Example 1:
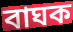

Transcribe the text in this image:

বাঘক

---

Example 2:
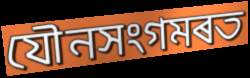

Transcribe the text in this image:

যৌনসংগমৰত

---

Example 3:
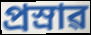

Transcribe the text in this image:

প্ৰস্ৰাৱ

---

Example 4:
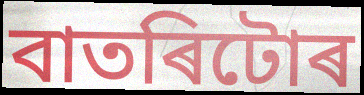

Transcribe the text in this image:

বাতৰিটোৰ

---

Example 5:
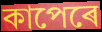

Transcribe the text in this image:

কাপেৰে